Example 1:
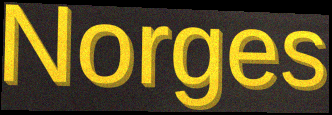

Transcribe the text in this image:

Norges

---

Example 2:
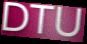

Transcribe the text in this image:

DTU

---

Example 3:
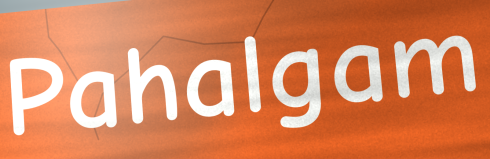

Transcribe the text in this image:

Pahalgam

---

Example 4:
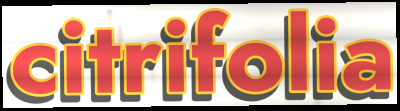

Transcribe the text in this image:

citrifolia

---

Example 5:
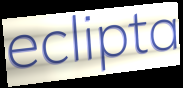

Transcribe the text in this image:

eclipta